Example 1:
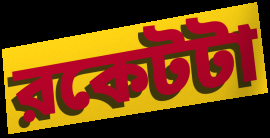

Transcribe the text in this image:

রকেটটা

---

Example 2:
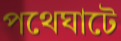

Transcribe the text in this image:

পথেঘাটে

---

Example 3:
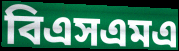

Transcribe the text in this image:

বিএসএমএ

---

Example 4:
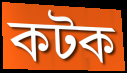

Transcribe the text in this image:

কটক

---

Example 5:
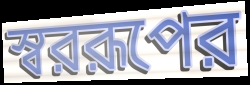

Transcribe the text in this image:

স্বররূপের